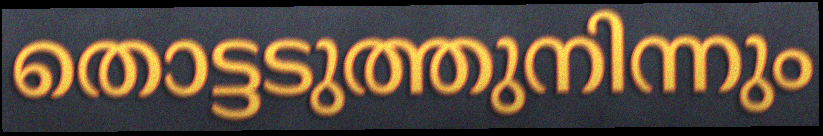
തൊട്ടടുത്തുനിന്നും